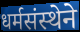
धर्मसंस्थेने